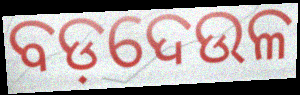
ବଡ଼ଦେଉଳ